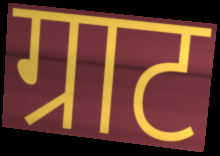
ग्राट